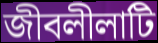
জীবলীলাটি